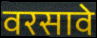
वरसावे